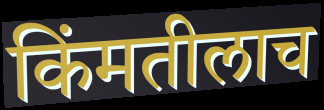
किंमतीलाच